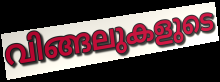
വിങ്ങലുകളുടെ